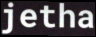
jetha